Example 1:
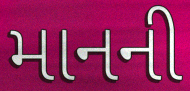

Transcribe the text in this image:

માનની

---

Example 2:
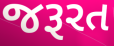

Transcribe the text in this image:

જરૂરત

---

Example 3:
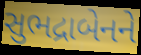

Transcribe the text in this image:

સુભદ્રાબેનને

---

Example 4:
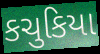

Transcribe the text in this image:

કચુકિયા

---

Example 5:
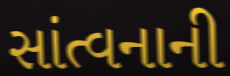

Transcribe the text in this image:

સાંત્વનાની